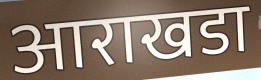
आराखडा